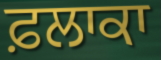
ਫ਼ਲਾਕਾ